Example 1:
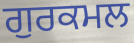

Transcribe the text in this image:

ਗੁਰਕਮਲ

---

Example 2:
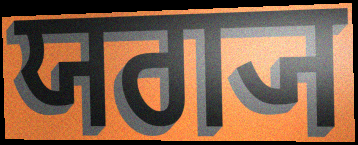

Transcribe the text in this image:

ਯਗ੍ਯ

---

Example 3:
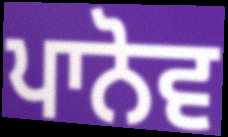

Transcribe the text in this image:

ਪਾਨੋਵ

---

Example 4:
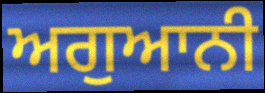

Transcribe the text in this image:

ਅਗੁਆਨੀ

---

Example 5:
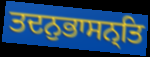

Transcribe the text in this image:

ਤਦਨੁਭਾਸਨ੍ਤਿ